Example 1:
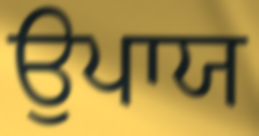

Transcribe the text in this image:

ਉਪਾਯ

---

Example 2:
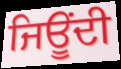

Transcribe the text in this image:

ਜਿਊਂਦੀ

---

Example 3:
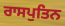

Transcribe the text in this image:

ਰਾਸਪੁਤਿਨ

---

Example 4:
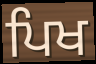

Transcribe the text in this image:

ਪਿਖ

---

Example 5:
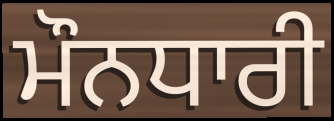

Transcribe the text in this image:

ਮੌਨਧਾਰੀ